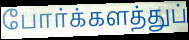
போர்க்களத்துப்